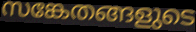
സങ്കേതങ്ങളുടെ